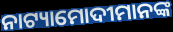
ନାଟ୍ୟାମୋଦୀମାନଙ୍କ